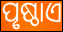
ପୃଷ୍ଠାଏ